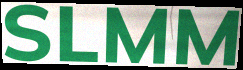
SLMM